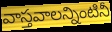
వాస్తవాలన్నింటినీ